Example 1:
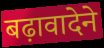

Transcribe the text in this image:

बढ़ावादेने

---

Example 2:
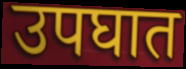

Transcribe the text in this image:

उपघात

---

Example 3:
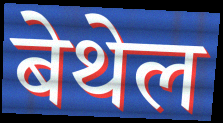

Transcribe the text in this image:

बेथेल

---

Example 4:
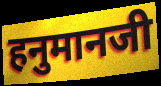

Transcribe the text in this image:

हनुमानजी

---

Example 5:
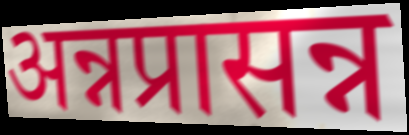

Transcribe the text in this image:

अन्नप्रासन्न